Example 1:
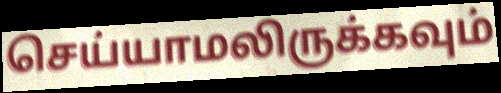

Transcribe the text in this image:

செய்யாமலிருக்கவும்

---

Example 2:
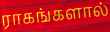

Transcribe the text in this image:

ராகங்களால்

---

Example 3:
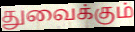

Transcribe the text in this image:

துவைக்கும்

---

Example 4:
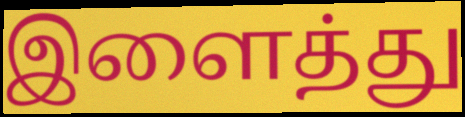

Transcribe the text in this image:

இளைத்து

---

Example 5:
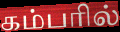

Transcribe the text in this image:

கம்பரில்